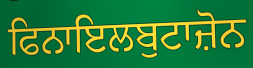
ਫਿਨਾਇਲਬੁਟਾਜ਼ੋਨ